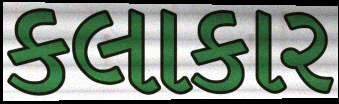
કલાકાર